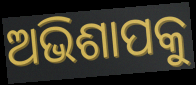
ଅଭିଶାପକୁ